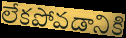
లేకపోవడానికి